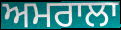
ਅਮਰਾਲਾ